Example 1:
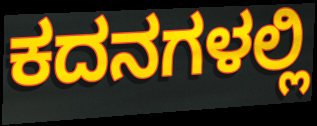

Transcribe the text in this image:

ಕದನಗಳಲ್ಲಿ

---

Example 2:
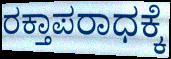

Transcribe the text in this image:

ರಕ್ತಾಪರಾಧಕ್ಕೆ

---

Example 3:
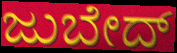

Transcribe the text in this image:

ಜುಬೇದ್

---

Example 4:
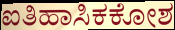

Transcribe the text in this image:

ಐತಿಹಾಸಿಕಕೋಶ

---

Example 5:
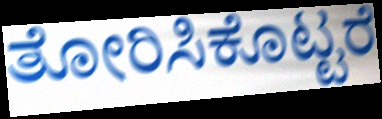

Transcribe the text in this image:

ತೋರಿಸಿಕೊಟ್ಟರೆ